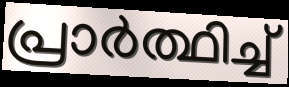
പ്രാർത്ഥിച്ച്